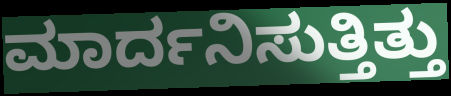
ಮಾರ್ದನಿಸುತ್ತಿತ್ತು